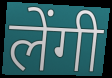
लेंगी